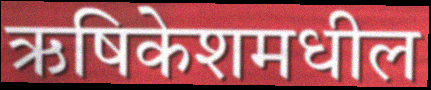
ऋषिकेशमधील